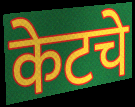
केटचे